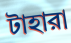
টাহারা